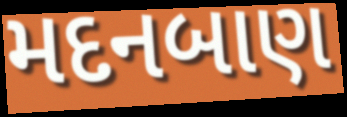
મદનબાણ